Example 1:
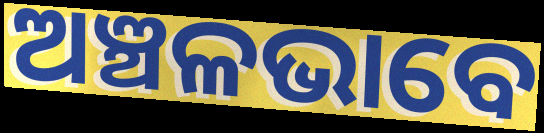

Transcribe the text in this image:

ଅଞ୍ଚଳଭାବେ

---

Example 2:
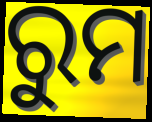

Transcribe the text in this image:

ରୁମ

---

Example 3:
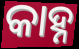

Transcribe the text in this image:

କାହ୍ନ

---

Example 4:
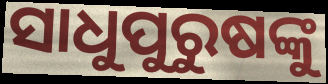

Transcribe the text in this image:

ସାଧୁପୁରୁଷଙ୍କୁ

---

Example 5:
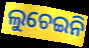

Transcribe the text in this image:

ଲୁଚେଇନି